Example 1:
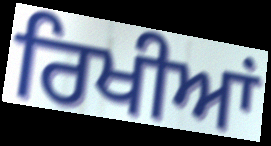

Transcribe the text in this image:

ਰਿਖੀਆਂ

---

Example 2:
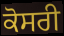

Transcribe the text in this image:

ਕੋਸਰੀ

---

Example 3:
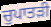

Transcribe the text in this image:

ਚੁਪਾਤੜੀ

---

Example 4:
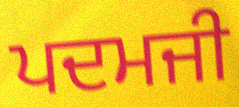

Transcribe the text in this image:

ਪਦਮਜੀ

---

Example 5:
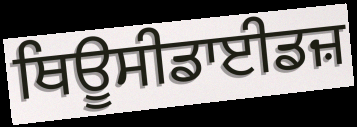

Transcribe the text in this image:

ਥਿਊਸੀਡਾਈਡਜ਼